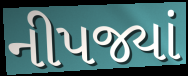
નીપજ્યાં